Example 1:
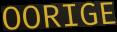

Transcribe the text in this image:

OORIGE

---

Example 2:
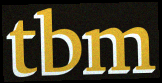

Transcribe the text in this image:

tbm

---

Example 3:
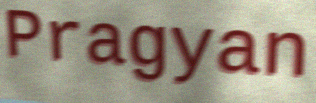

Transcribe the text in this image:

Pragyan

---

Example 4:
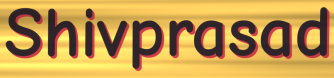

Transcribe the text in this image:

Shivprasad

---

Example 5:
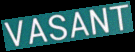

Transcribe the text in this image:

VASANT